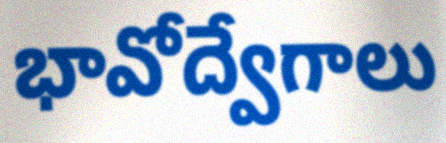
భావోద్వేగాలు